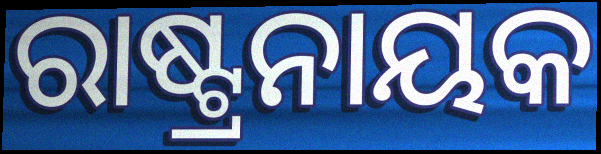
ରାଷ୍ଟ୍ରନାୟକ